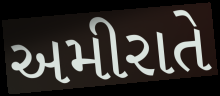
અમીરાતે